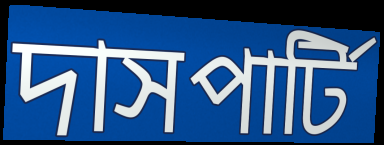
দাসপার্টি